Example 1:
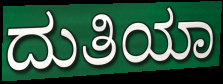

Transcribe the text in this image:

ದುತಿಯಾ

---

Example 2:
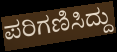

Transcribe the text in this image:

ಪರಿಗಣಿಸಿದ್ದು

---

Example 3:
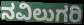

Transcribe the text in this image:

ನವಿಲುಗರಿ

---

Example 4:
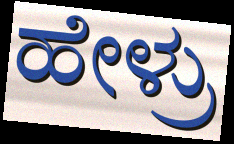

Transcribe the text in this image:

ಹೇಳ್ರು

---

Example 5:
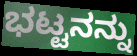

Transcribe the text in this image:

ಭಟ್ಟನನ್ನು